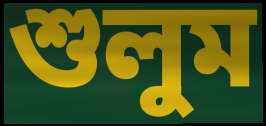
শুলুম